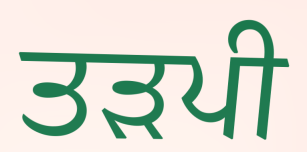
ਤੜਪੀ